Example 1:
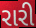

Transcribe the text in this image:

રારી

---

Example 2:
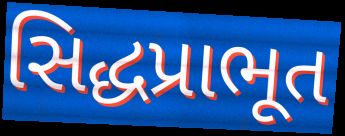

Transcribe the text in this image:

સિદ્ધપ્રાભૂત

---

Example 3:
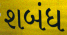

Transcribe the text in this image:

શબંધ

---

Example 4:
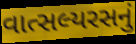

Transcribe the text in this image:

વાત્સલ્યરસનું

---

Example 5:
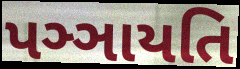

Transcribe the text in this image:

પઞ્ઞાયતિ